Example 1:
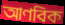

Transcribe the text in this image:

আণবিক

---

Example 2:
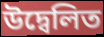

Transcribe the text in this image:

উদ্বেলিত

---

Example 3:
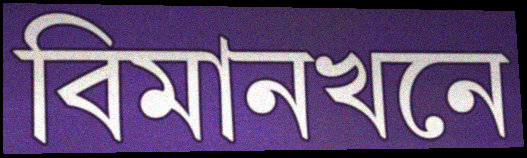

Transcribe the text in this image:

বিমানখনে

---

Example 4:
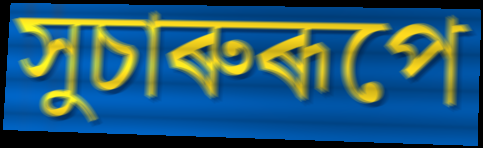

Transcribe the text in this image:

সুচাৰুৰূপে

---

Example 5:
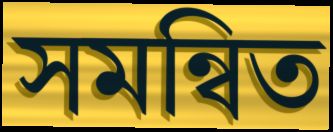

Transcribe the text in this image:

সমন্বিত